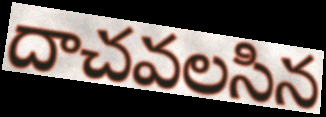
దాచవలసిన